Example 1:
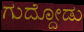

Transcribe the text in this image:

ಗುದ್ದೋಡು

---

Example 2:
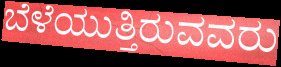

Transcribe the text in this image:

ಬೆಳೆಯುತ್ತಿರುವವರು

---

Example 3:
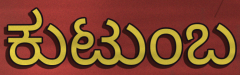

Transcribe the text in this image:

ಕುಟುಂಬ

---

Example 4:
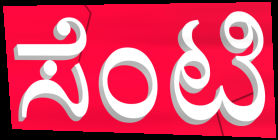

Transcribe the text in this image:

ಸೆಂಟಿ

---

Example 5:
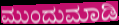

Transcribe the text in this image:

ಮುಂದುಮಾಡಿ